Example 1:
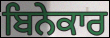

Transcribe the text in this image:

ਬਿਨੇਕਾਰ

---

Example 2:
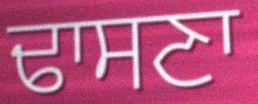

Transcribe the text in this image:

ਢਾਸਣਾ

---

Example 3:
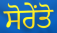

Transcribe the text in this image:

ਸੋਰੇਂਤੋ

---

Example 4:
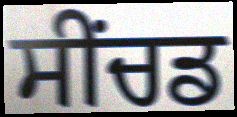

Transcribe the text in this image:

ਸੀਂਚਡ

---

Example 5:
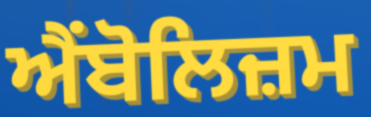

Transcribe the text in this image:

ਐਂਬੋਲਿਜ਼ਮ